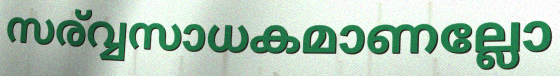
സര്വ്വസാധകമാണല്ലോ